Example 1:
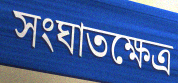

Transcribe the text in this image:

সংঘাতক্ষেত্র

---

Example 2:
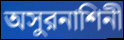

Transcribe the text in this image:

অসুরনাশিনী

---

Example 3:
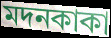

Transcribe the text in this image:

মদনকাকা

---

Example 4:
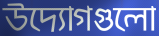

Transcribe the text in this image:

উদ্যোগগুলো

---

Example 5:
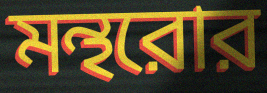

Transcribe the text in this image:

মন্থরোর